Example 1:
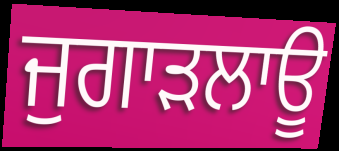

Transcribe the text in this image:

ਜੁਗਾੜਲਾਊ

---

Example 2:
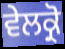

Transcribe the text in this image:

ਵੇਲਕ੍ਰੋ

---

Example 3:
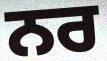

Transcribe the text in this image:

ਨਰ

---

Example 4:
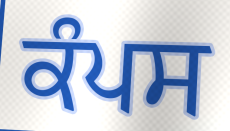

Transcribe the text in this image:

ਕੰਪਸ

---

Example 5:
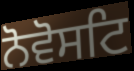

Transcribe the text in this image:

ਨੋਵੋਸਟਿ